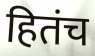
हितंच